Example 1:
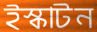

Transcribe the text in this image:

ইস্কাটন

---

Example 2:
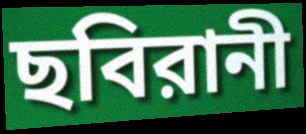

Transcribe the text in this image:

ছবিরানী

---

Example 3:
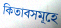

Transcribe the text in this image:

কিতাবসমূহে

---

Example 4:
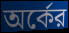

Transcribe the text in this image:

অর্কের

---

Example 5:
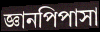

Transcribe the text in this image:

জ্ঞানপিপাসা